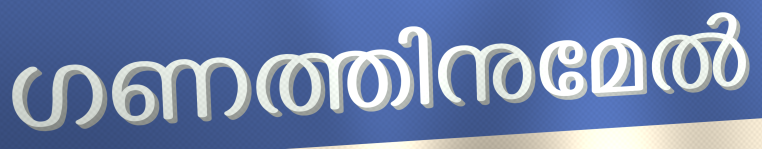
ഗണത്തിനുമേൽ